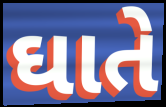
ઘાતે